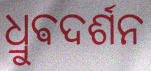
ଧ୍ରୁଵଦର୍ଶନ